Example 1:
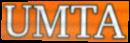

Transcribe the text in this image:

UMTA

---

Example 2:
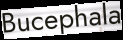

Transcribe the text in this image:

Bucephala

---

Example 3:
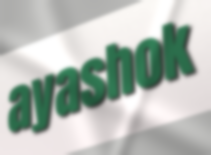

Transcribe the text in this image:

ayashok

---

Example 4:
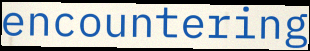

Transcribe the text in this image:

encountering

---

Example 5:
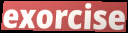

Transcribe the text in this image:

exorcise